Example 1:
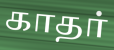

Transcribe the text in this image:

காதர்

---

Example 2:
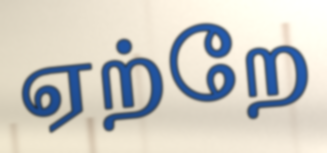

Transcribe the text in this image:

ஏற்றே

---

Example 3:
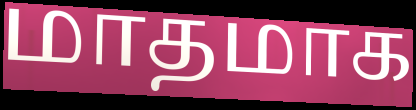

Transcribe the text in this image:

மாதமாக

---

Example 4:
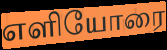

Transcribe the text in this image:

எளியோரை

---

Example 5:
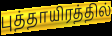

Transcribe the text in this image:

புத்தாயிரத்தில்